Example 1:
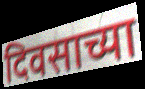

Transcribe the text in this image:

दिवसाच्या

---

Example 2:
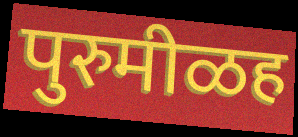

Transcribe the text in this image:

पुरुमीळह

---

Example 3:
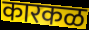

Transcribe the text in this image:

कारकळ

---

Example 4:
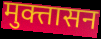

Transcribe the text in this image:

मुक्तासन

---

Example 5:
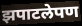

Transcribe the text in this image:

झपाटलेपण